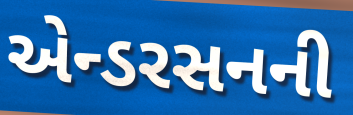
એન્ડરસનની